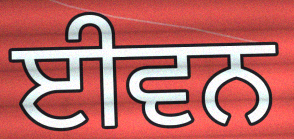
ਈਵਨ